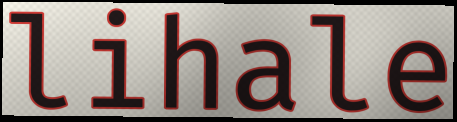
lihale